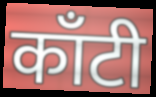
काँटी